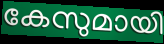
കേസുമായി